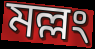
মল্লং